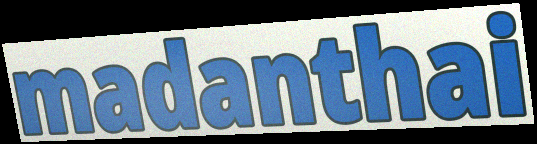
madanthai